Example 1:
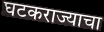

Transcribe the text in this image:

घटकराज्याचा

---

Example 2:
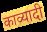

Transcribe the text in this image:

काव्यादी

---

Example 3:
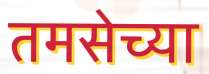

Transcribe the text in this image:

तमसेच्या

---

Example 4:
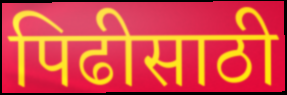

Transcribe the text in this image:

पिढीसाठी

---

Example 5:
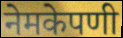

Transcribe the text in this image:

नेमकेपणी